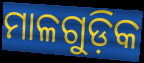
ମାଳଗୁଡ଼ିକ